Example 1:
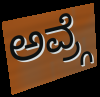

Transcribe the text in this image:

ಅವ್ರ್ಗೆ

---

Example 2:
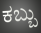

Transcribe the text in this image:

ಕಬ್ಬು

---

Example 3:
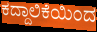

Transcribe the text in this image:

ಕದ್ದಾಲಿಕೆಯಿಂದ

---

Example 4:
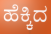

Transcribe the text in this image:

ಹೆಕ್ಕಿದ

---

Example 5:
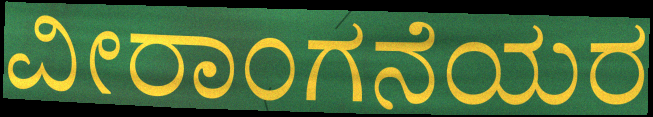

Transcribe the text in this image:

ವೀರಾಂಗನೆಯರ